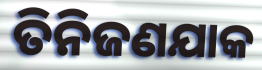
ତିନିଜଣଯାକ